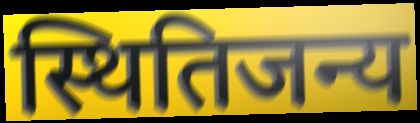
स्थितिजन्य